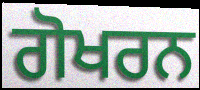
ਗੋਖਰਨ